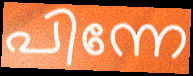
പിന്നേ